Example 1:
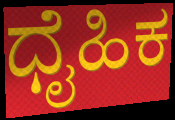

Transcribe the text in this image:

ಧೈಹಿಕ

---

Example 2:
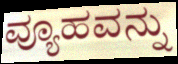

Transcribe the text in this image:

ವ್ಯೂಹವನ್ನು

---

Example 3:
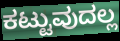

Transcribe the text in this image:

ಕಟ್ಟುವುದಲ್ಲ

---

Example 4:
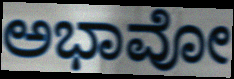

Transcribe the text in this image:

ಅಭಾವೋ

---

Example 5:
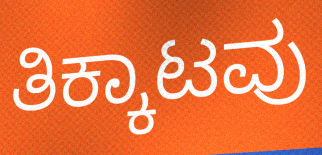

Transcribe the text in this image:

ತಿಕ್ಕಾಟವು